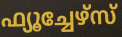
ഫ്യൂച്ചേഴ്സ്